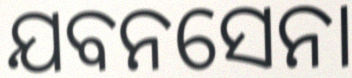
ଯବନସେନା